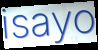
isayo